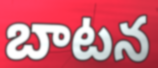
బాటన